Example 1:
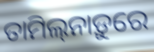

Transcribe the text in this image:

ତାମିଲ୍‌ନାଡ଼ୁରେ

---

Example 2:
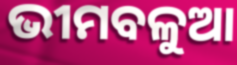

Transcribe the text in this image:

ଭୀମବଳୁଆ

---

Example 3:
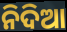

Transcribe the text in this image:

ନିଦିଆ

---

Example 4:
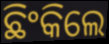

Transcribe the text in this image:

ଛିଂକିଲେ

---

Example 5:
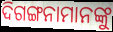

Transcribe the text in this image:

ଦିଗଙ୍ଗନାମାନଙ୍କୁ